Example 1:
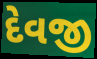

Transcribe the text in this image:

દેવજી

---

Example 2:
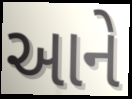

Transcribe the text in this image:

આને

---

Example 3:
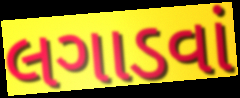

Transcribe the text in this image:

લગાડવાં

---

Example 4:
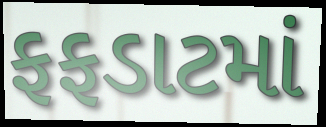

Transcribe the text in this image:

ફફડાટમાં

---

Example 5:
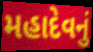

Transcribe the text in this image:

મહાદેવનું